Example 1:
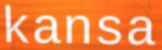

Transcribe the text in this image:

kansa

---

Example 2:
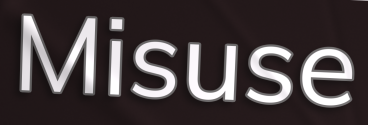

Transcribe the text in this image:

Misuse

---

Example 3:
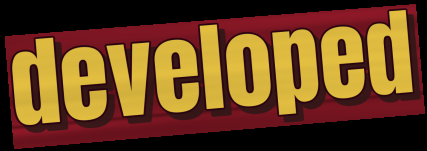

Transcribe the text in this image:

developed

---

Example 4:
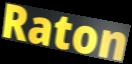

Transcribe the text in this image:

Raton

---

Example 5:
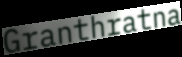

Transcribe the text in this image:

Granthratna